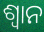
ଶ୍ୱାନ